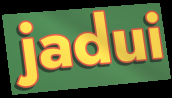
jadui